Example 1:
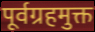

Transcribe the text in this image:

पूर्वग्रहमुक्त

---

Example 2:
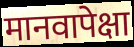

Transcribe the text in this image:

मानवापेक्षा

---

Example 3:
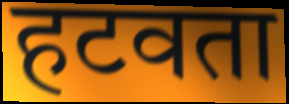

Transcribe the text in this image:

हटवता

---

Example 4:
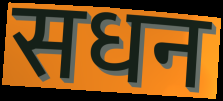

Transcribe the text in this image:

सधन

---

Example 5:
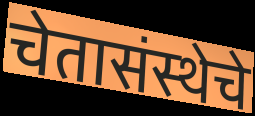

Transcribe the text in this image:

चेतासंस्थेचे